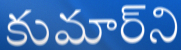
కుమార్‌ని